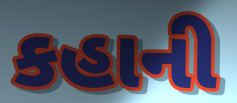
કહાની